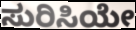
ಸುರಿಸಿಯೇ